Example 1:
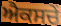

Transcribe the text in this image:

ਐਕਸਚੇਂ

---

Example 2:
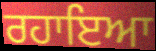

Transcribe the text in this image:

ਰਹਾਇਆ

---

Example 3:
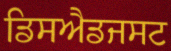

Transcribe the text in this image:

ਡਿਸਐਡਜਸਟ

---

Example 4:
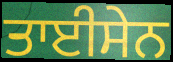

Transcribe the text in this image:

ਤਾਈਸੇਨ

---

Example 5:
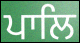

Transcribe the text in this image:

ਪਾਲਿ